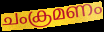
ചംക്രമണം